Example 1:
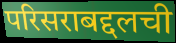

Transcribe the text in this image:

परिसराबद्दलची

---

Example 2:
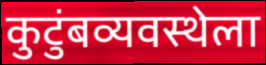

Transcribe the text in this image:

कुटुंबव्यवस्थेला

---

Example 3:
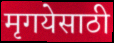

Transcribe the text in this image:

मृगयेसाठी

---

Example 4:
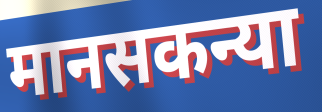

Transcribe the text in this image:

मानसकन्या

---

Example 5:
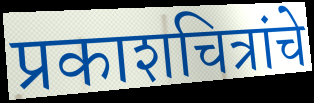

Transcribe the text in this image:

प्रकाशचित्रांचे